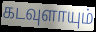
கடவுளாயும்